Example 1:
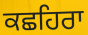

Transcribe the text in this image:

ਕਛਹਿਰਾ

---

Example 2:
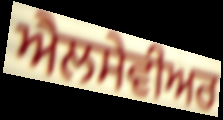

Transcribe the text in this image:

ਐਲਸੇਵੀਅਰ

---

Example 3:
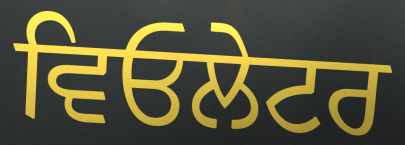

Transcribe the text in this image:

ਵਿਓਲੇਟਰ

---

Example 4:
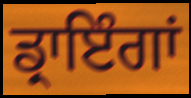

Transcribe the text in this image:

ਡ੍ਰਾਇੰਗਾਂ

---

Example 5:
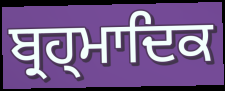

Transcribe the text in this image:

ਬ੍ਰਹ੍ਮਾਦਿਕ